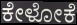
ಕೇಳೋಕೆ